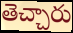
తెచ్చారు